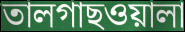
তালগাছওয়ালা